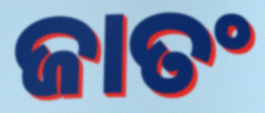
ଜାତଂ